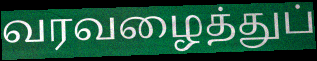
வரவழைத்துப்